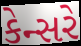
કેન્સરે